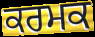
ਕਰਮਕ